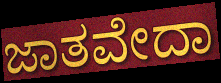
ಜಾತವೇದಾ